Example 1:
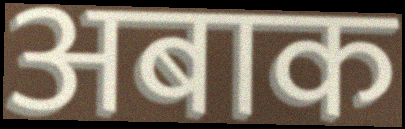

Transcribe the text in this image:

अबाक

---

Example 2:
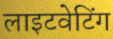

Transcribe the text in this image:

लाइटवेटिंग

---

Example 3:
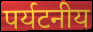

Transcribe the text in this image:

पर्यटनीय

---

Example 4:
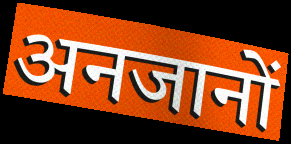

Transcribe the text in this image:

अनजानों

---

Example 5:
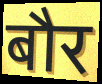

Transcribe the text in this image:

बौर